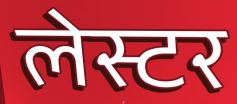
लेस्टर